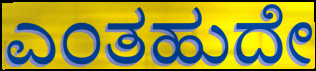
ಎಂತಹುದೇ